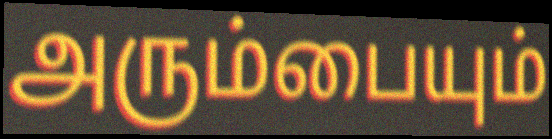
அரும்பையும்